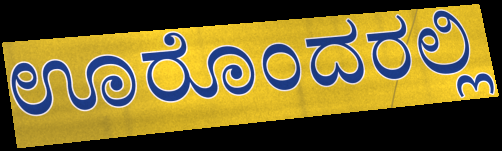
ಊರೊಂದರಲ್ಲಿ